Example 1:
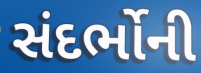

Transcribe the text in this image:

સંદર્ભોની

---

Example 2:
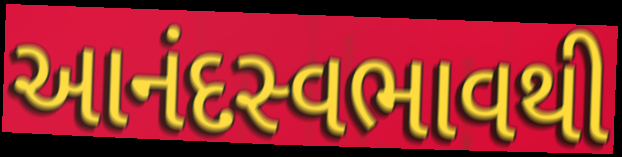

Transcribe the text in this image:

આનંદસ્વભાવથી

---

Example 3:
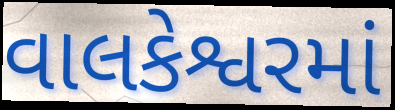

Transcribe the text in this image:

વાલકેશ્વરમાં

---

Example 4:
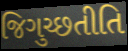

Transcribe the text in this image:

જિગુચ્છતીતિ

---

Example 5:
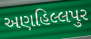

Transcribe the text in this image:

અણહિલ્લપુર